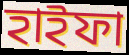
হাইফা